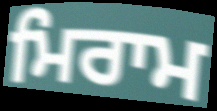
ਮਿਰਾਮ